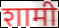
शामी